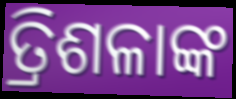
ତ୍ରିଶଳାଙ୍କ